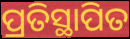
ପ୍ରତିସ୍ଥାପିତ